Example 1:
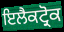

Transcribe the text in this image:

ਇਲੈਕਟ੍ਰੋਕ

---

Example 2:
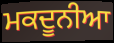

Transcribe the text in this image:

ਮਕਦੂਨੀਆ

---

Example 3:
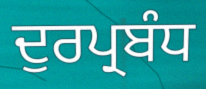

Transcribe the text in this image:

ਦੁਰਪ੍ਰਬੰਧ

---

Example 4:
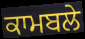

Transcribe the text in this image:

ਕਾਮਬਲੇ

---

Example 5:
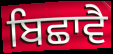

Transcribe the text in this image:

ਬਿਛਾਵੈ